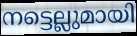
നട്ടെല്ലുമായി